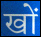
खों